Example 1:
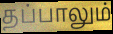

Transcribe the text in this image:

தப்பாலும்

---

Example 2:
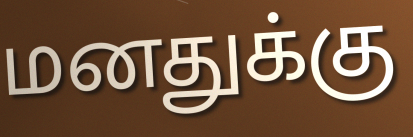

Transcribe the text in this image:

மனதுக்கு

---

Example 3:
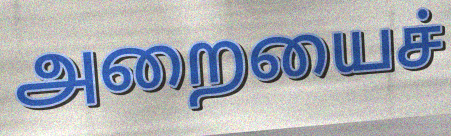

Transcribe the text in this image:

அறையைச்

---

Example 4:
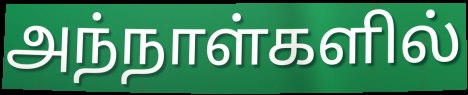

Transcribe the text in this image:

அந்நாள்களில்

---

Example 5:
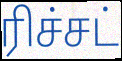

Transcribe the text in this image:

ரிச்சட்